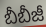
బీబీజీ